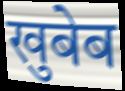
खुबेब